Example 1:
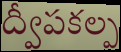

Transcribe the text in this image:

ద్వీపకల్ప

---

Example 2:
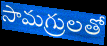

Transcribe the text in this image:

సామగ్రులతో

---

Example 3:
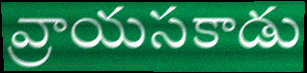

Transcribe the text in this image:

వ్రాయసకాడు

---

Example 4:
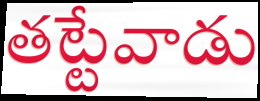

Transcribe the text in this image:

తట్టేవాడు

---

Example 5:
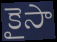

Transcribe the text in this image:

కైసా